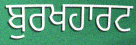
ਬੁਰਖਹਾਰਟ